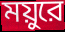
ময়ুরে